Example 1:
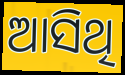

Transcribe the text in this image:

ଆସିଥି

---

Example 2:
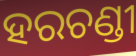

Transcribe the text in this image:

ହରଚଣ୍ଡୀ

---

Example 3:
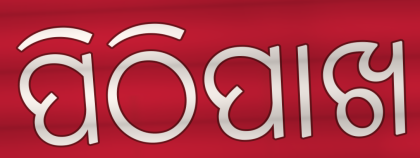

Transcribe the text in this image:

ପିଠିପାଖ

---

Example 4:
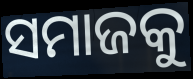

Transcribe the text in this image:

ସମାଜକୁ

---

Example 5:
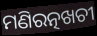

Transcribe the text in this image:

ମଣିରତ୍ନଖଚୀ